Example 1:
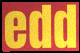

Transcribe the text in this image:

edd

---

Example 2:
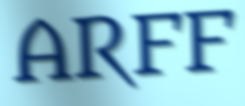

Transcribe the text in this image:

ARFF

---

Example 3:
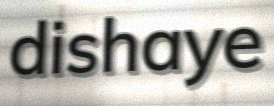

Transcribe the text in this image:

dishaye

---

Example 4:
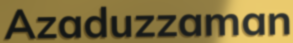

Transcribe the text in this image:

Azaduzzaman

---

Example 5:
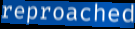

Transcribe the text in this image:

reproached